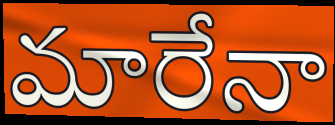
మారేనా